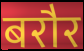
बरौर